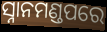
ସ୍ନାନମଣ୍ଡପରେ